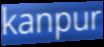
kanpur